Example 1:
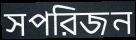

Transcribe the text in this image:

সপরিজন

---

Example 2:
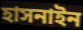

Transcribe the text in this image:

হাসনাইন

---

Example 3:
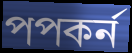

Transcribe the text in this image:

পপকর্ন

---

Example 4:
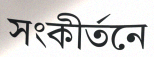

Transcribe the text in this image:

সংকীর্তনে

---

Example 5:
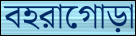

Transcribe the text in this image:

বহরাগোড়া